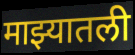
माझ्यातली